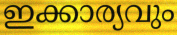
ഇക്കാര്യവും